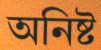
অনিষ্ট